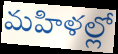
మహిళల్లో